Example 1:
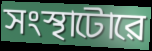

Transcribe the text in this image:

সংস্থাটোৱে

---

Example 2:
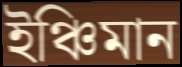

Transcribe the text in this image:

ইঞ্চিমান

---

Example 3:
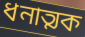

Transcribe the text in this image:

ধনাত্মক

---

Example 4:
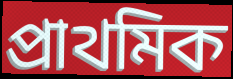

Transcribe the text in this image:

প্ৰাথমিক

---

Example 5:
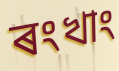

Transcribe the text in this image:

ৰংখাং